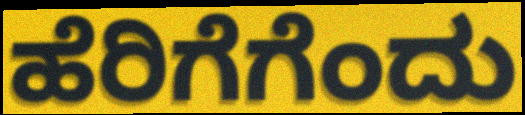
ಹೆರಿಗೆಗೆಂದು